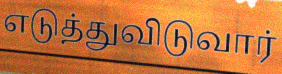
எடுத்துவிடுவார்